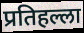
प्रतिहल्ला